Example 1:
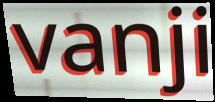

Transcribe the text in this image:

vanji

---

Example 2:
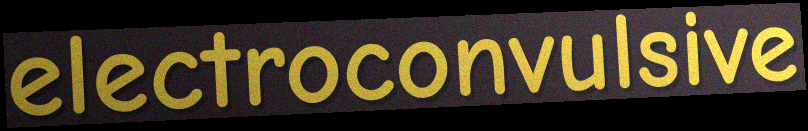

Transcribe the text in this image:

electroconvulsive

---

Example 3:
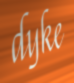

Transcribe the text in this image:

dyke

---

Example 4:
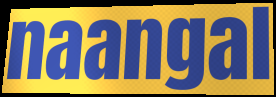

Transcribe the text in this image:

naangal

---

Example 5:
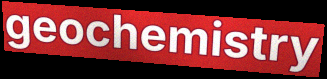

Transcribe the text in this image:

geochemistry